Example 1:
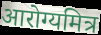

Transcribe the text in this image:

आरोग्यमित्र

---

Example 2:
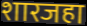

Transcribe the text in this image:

शारजहा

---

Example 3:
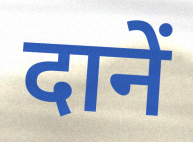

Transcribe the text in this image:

दानें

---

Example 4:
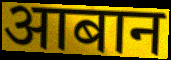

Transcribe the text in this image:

आबान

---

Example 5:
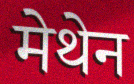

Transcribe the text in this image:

मेथेन